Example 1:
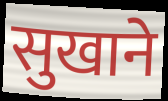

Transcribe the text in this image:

सुखाने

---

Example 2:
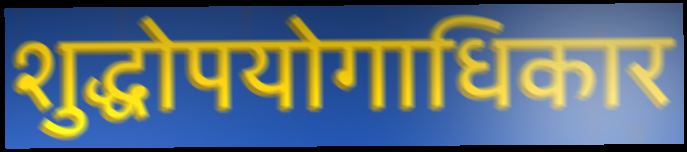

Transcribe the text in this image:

शुद्धोपयोगाधिकार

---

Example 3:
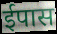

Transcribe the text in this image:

ईपास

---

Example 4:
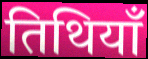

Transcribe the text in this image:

तिथियाँ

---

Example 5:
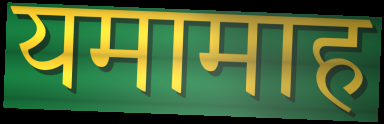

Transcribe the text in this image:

यमामाह